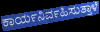
ಕಾರ್ಯನಿರ್ವಹಿಸುತ್ತಾಳೆ